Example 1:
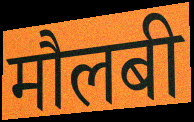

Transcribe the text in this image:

मौलबी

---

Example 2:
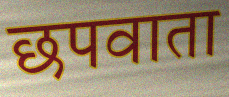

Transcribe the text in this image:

छपवाता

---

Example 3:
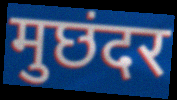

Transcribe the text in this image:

मुछंदर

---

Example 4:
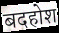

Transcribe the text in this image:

बदहोश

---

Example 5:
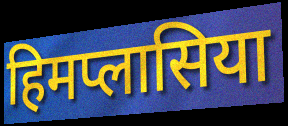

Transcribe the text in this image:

हिमप्लासिया